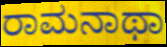
ರಾಮನಾಥಾ